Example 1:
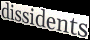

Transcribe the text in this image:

dissidents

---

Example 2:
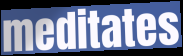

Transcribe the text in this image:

meditates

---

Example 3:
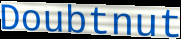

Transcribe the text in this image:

Doubtnut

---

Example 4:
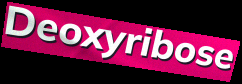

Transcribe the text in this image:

Deoxyribose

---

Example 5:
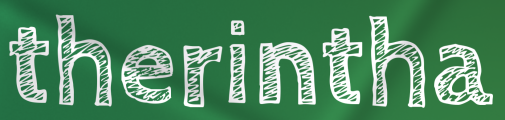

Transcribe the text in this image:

therintha